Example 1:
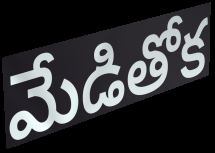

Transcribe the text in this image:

మేడితోక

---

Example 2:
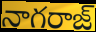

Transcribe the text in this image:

నాగరాజ్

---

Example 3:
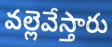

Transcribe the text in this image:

వల్లెవేస్తారు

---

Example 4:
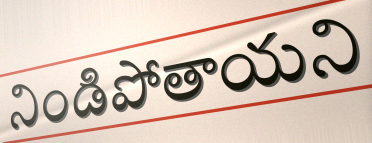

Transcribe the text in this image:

నిండిపోతాయని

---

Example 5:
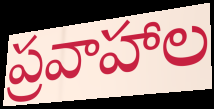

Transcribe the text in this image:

ప్రవాహాల